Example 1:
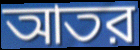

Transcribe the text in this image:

আতর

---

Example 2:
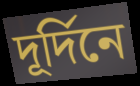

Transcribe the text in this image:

দূর্দিনে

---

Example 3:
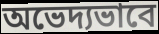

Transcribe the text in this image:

অভেদ্যভাবে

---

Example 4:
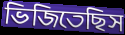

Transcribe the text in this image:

ভিজিতেছিস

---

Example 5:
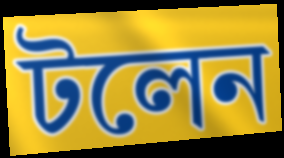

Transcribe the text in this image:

টলেন